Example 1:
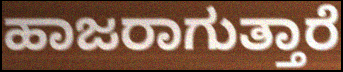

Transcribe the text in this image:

ಹಾಜರಾಗುತ್ತಾರೆ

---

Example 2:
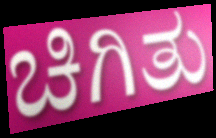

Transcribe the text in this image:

ಚಿಗಿತು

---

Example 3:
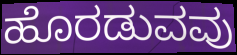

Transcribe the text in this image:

ಹೊರಡುವವು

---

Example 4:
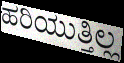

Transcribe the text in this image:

ಹರಿಯುತ್ತಿಲ್ಲ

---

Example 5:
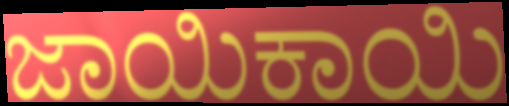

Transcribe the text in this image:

ಜಾಯಿಕಾಯಿ